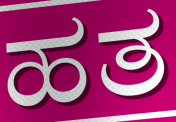
ಹತ